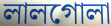
লালগোলা